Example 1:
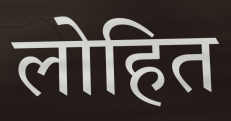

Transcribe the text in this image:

लोहित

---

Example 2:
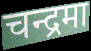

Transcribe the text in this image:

चन्द्रमा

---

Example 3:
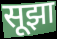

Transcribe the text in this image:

सूझा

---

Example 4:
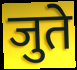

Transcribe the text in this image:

जुते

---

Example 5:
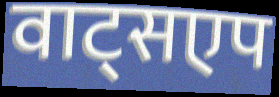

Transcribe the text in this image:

वाट्सएप